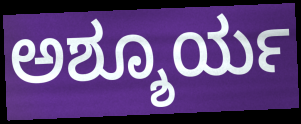
ಅಶ್ಶೂರ್ಯ